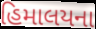
હિમાલયના